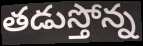
తడుస్తోన్న